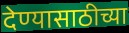
देण्यासाठीच्या